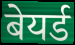
बेयर्ड